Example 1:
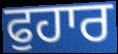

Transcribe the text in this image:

ਫੁਹਾਰ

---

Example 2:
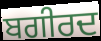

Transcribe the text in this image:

ਬਗੀਰਦ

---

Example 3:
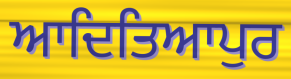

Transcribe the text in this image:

ਆਦਿਤਿਆਪੁਰ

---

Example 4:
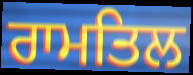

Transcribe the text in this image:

ਰਾਮਤਿਲ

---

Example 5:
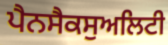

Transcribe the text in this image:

ਪੈਨਸੈਕਸੁਅਲਿਟੀ